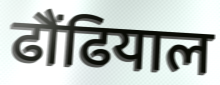
ढौंढियाल